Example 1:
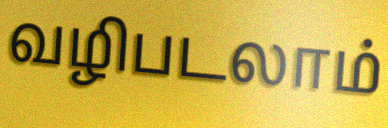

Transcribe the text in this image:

வழிபடலாம்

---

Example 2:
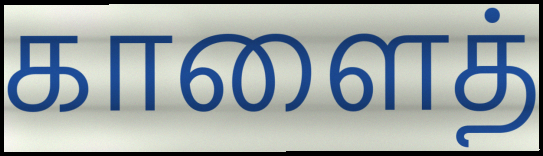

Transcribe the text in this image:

காளைத்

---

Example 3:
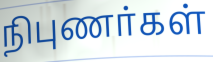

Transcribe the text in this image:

நிபுணர்கள்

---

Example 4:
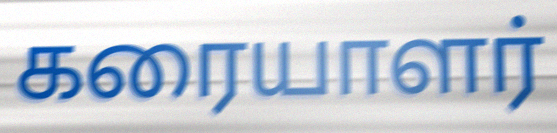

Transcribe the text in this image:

கரையாளர்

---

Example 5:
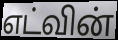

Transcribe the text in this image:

எட்வின்